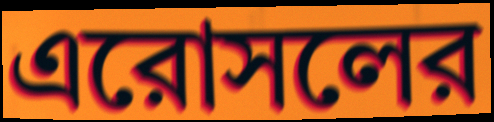
এরোসলের